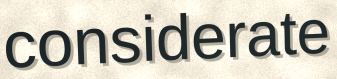
considerate